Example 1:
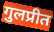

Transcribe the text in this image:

गुलप्रीत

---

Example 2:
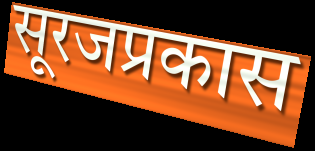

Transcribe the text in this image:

सूरजप्रकास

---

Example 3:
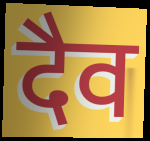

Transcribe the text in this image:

दैव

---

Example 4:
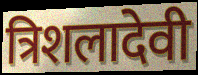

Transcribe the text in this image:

त्रिशलादेवी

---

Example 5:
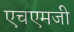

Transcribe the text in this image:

एचएमजी